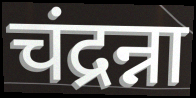
चंद्रन्ना